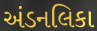
અંડનલિકા